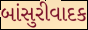
બાંસુરીવાદક